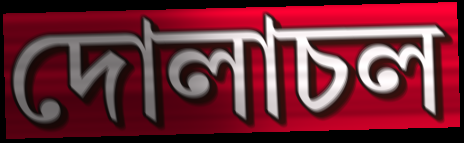
দোলাচল